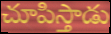
చూపిస్తాడు